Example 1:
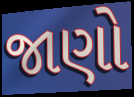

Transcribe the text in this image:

જાણો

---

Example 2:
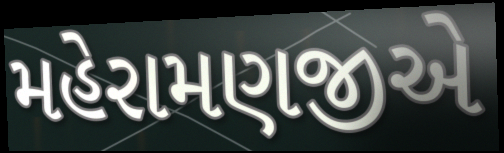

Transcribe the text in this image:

મહેરામણજીએ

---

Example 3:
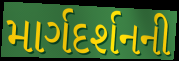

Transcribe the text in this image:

માર્ગદર્શનની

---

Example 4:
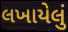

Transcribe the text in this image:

લખાયેલું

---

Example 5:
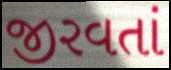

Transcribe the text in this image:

જીરવતાં